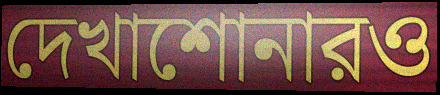
দেখাশোনারও